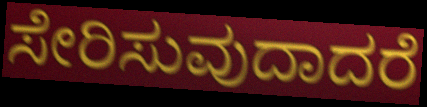
ಸೇರಿಸುವುದಾದರೆ